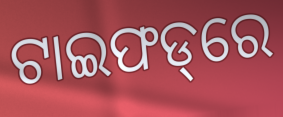
ଟାଇଫଡ୍‌ରେ